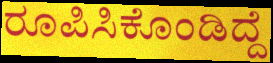
ರೂಪಿಸಿಕೊಂಡಿದ್ದೆ